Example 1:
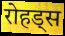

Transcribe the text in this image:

रोहड्स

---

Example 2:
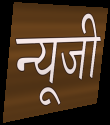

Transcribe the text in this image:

न्यूजी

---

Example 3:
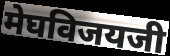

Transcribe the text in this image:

मेघविजयजी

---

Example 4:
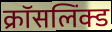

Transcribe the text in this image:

क्रॉसलिंक्ड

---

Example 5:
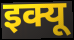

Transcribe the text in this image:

इक्यू